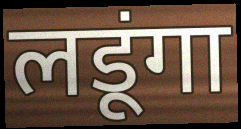
लडूंगा